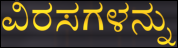
ವಿರಸಗಳನ್ನು